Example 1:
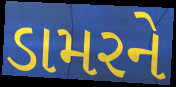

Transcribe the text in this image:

ડામરને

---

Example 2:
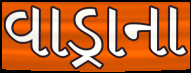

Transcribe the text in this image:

વાડ્રાના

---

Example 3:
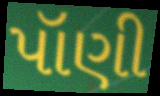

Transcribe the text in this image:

પૉણી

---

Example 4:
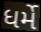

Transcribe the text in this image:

ધર્મે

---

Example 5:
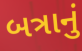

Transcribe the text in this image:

બત્રાનું